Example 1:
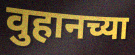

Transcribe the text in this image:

वुहानच्या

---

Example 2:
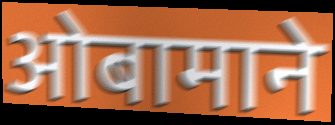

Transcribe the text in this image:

ओबामाने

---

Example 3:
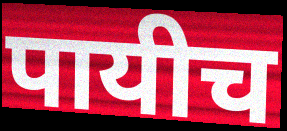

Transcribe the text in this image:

पायीच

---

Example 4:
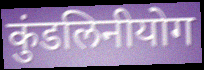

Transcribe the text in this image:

कुंडलिनीयोग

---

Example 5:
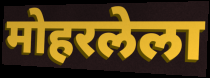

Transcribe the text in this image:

मोहरलेला